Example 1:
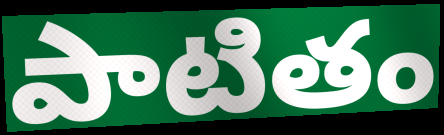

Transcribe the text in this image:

పాటితం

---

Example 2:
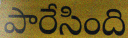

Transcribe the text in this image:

పారేసింది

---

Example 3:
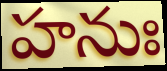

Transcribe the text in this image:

హనుః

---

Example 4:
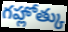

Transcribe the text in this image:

గహ్లోత్కు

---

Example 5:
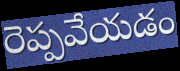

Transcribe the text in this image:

రెప్పవేయడం